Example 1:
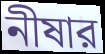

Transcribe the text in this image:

নীষার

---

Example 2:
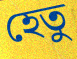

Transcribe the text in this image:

হেতু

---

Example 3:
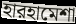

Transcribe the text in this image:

হারহামেশা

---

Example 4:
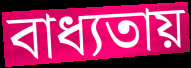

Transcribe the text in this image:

বাধ্যতায়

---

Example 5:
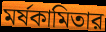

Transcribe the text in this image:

মর্ষকামিতার